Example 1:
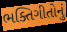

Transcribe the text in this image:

ભક્તિગીતોનું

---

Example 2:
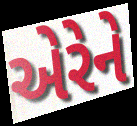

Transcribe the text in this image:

એરેને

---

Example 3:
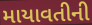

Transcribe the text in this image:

માયાવતીની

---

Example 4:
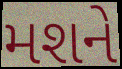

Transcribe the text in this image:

મશને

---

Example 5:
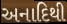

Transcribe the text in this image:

અનાદિથી